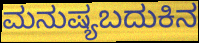
ಮನುಷ್ಯಬದುಕಿನ